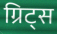
ग्रिट्स